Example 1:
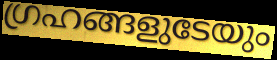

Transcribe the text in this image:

ഗ്രഹങ്ങളുടേയും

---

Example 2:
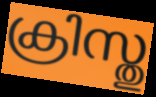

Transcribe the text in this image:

ക്രിസ്തു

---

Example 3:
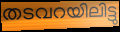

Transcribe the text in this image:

തടവറയിലിട്ടു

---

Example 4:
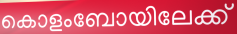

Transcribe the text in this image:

കൊളംബോയിലേക്ക്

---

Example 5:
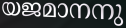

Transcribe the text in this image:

യജമാനനു